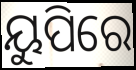
ୟୁପିରେ